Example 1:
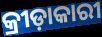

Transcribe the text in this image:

କ୍ରୀଡ଼ାକାରୀ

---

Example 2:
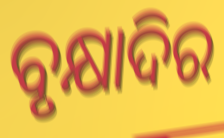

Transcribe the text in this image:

ବୃକ୍ଷାଦିର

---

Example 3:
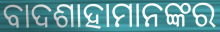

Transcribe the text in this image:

ବାଦଶାହାମାନଙ୍କର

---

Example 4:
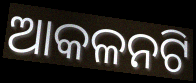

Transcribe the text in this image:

ଆକଳନଟି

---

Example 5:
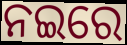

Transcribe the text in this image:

ନଇରେ